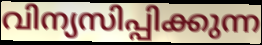
വിന്യസിപ്പിക്കുന്ന